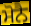
ਮੋਨੈ